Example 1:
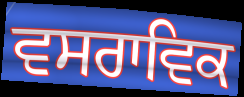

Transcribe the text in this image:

ਵਸਰਾਵਿਕ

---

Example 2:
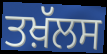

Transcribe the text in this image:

ਤਖ਼ੱਲਸ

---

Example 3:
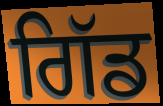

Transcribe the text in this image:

ਗਿੱਡ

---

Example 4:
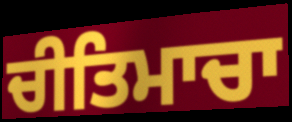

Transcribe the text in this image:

ਚੀਤਿਮਾਚਾ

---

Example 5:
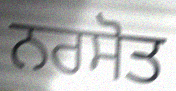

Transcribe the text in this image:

ਨਰਸੋਤ